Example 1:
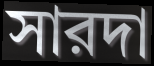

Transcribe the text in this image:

সারদা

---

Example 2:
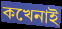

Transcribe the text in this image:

কখেনাই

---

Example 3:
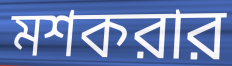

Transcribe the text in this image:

মশকরার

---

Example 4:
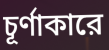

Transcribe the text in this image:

চূর্ণাকারে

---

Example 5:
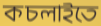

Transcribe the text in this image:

কচলাইতে